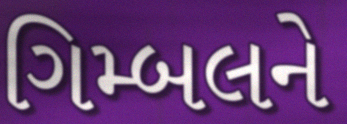
ગિમ્બલને